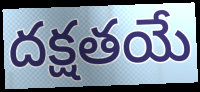
దక్షతయే